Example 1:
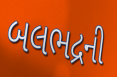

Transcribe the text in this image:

બલભદ્રની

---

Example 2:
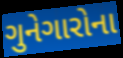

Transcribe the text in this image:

ગુનેગારોના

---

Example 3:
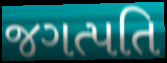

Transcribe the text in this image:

જગત્પતિ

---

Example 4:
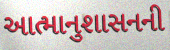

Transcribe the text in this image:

આત્માનુશાસનની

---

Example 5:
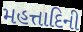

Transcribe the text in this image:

મહત્તાદિની